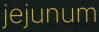
jejunum